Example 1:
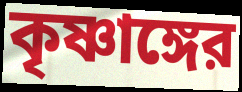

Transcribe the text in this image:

কৃষ্ণাঙ্গের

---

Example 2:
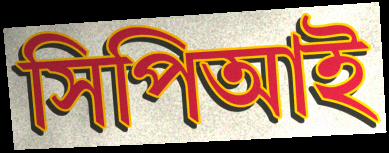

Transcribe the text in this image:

সিপিআই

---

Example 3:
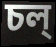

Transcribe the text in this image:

চল্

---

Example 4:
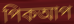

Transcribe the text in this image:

পিকআপ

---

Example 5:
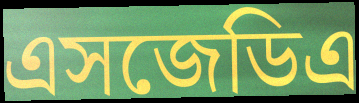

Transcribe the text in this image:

এসজেডিএ